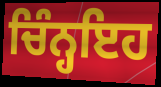
ਚਿੰਨ੍ਹਇਹ